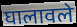
घालावले